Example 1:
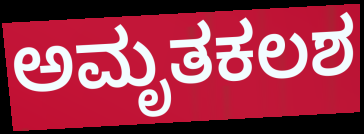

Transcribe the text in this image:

ಅಮೃತಕಲಶ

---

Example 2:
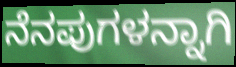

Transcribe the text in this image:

ನೆನಪುಗಳನ್ನಾಗಿ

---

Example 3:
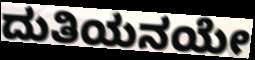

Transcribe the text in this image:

ದುತಿಯನಯೇ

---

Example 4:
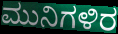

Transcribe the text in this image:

ಮುನಿಗಳಿರ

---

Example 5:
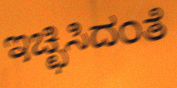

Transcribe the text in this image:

ಇಚ್ಛಿಸಿದಂತೆ